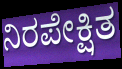
ನಿರಪೇಕ್ಷಿತ